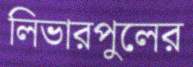
লিভারপুলের